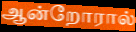
ஆன்றோரால்